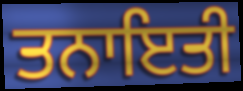
ਤਨਾਇਤੀ